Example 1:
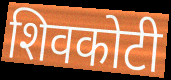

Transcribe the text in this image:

शिवकोटी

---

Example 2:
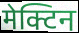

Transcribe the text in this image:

मेक्टिन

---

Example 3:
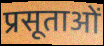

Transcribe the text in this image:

प्रसूताओं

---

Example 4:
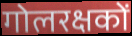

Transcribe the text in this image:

गोलरक्षकों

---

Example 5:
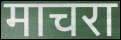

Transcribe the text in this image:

माचरा